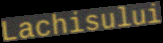
Lachisului